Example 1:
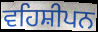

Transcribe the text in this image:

ਵਹਿਸ਼ੀਪਨ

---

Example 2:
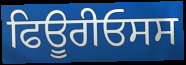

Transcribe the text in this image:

ਫਿਊਰੀਓਸਸ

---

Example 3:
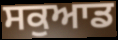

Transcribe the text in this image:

ਸਕੁਆਡ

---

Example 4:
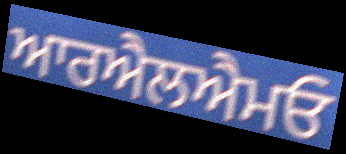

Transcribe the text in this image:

ਆਰਐਲਐਮਓ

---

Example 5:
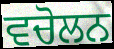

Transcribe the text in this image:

ਵਚੋਲਨ